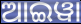
ଆଇୱା